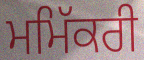
ਮਮਿੱਕਰੀ